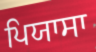
ਪਿਯਾਸਾ